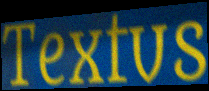
Textus